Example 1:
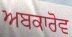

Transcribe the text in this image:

ਅਬਕਾਰੋਵ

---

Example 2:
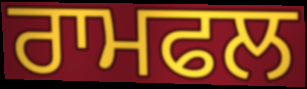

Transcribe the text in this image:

ਰਾਮਫਲ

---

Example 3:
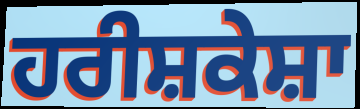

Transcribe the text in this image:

ਹਰੀਸ਼ਕੇਸ਼ਾ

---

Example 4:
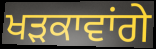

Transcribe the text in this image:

ਖੜਕਾਵਾਂਗੇ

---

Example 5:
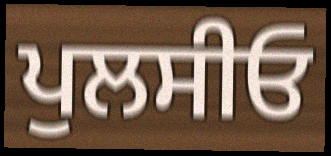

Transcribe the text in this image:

ਪੁਲਸੀਓ